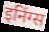
इनिंग्स